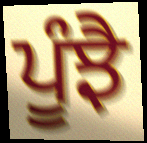
ਪੂੰਝੈ